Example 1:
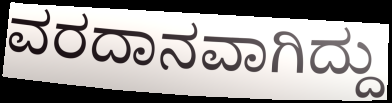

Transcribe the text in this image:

ವರದಾನವಾಗಿದ್ದು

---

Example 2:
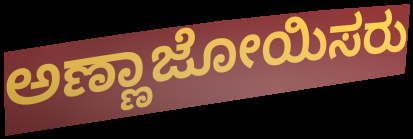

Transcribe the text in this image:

ಅಣ್ಣಾಜೋಯಿಸರು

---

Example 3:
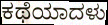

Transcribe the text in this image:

ಕಥೆಯಾದಳು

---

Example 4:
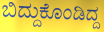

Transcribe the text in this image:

ಬಿದ್ದುಕೊಂಡಿದ್ದ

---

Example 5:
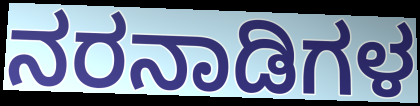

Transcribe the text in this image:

ನರನಾಡಿಗಳ